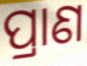
ପ୍ରାଣ